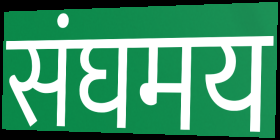
संघमय